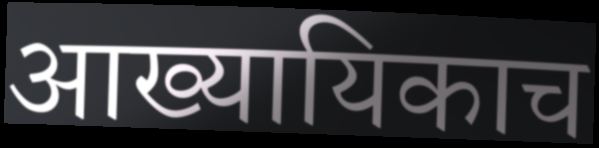
आख्यायिकाच